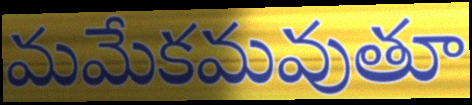
మమేకమవుతూ